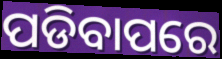
ପଡିବାପରେ